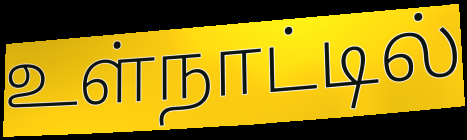
உள்நாட்டில்